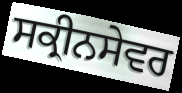
ਸਕ੍ਰੀਨਸੇਵਰ